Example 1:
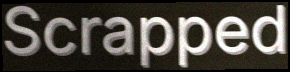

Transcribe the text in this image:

Scrapped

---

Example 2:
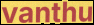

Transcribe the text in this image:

vanthu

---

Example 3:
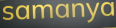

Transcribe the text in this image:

samanya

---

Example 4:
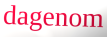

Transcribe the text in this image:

dagenom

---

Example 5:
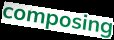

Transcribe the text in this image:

composing